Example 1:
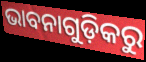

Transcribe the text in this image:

ଭାବନାଗୁଡ଼ିକରୁ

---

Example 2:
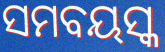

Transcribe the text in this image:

ସମବୟସ୍କ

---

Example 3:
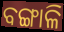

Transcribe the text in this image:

ବଙ୍ଗାଳି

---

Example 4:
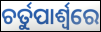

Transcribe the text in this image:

ଚର୍ତୁପାର୍ଶ୍ବରେ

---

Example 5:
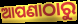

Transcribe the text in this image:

ଆପଣାଠାରୁ